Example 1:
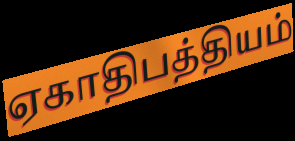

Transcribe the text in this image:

ஏகாதிபத்தியம்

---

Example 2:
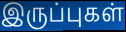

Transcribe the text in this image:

இருப்புகள்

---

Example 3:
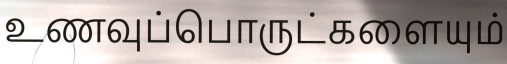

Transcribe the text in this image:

உணவுப்பொருட்களையும்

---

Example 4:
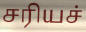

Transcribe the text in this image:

சரியச்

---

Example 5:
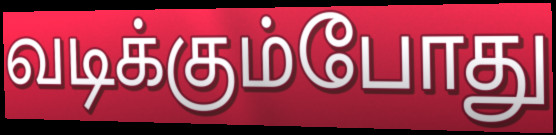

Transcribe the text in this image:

வடிக்கும்போது